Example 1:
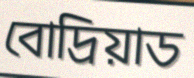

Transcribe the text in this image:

বোদ্রিয়াড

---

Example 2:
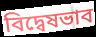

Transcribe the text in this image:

বিদ্বেষভাব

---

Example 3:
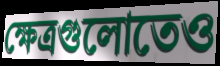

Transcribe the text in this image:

ক্ষেত্রগুলোতেও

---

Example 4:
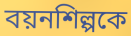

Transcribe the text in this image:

বয়নশিল্পকে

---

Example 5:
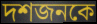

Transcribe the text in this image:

দশজনকে